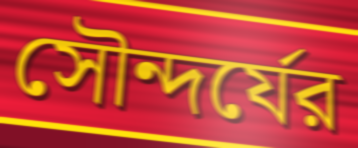
সৌন্দর্যের